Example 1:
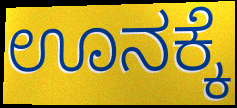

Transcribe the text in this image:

ಊನಕ್ಕೆ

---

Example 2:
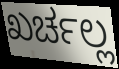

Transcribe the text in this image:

ಖರ್ಚಲ್ಲ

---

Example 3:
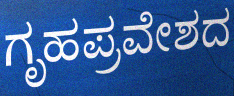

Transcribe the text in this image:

ಗೃಹಪ್ರವೇಶದ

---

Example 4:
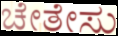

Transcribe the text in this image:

ಚೇತೇಸು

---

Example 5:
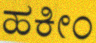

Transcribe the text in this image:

ಹಕೀಂ